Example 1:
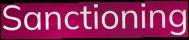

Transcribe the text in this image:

Sanctioning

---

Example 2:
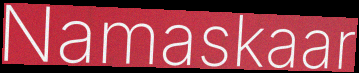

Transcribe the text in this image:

Namaskaar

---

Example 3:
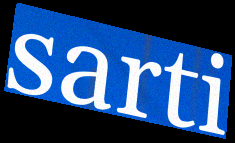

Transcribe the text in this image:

sarti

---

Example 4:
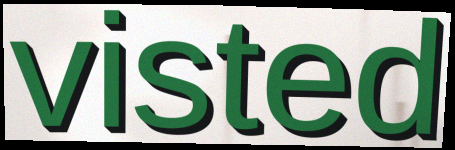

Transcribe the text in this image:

visted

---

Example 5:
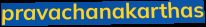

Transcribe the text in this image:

pravachanakarthas